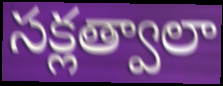
సక్లత్వాలా